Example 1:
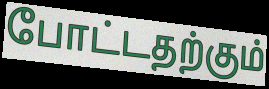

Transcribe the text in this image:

போட்டதற்கும்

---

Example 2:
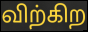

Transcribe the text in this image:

விற்கிற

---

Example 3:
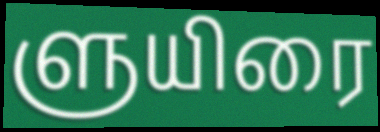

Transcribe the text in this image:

ளுயிரை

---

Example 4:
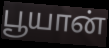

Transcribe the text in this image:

பூயான்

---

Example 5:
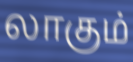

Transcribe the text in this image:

லாகும்